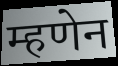
म्हणेन